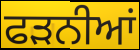
ਫੜਨੀਆਂ